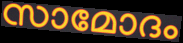
സാമോദം